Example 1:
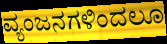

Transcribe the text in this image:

ವ್ಯಂಜನಗಳಿಂದಲೂ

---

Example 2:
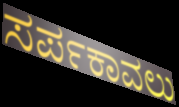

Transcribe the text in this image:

ಸರ್ಪಕಾವಲು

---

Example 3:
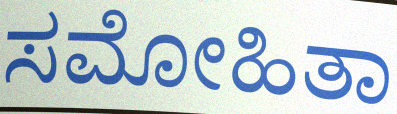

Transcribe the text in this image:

ಸಮೋಹಿತಾ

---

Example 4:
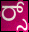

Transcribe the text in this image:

ರ್‍ಸ್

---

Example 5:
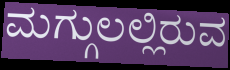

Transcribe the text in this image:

ಮಗ್ಗುಲಲ್ಲಿರುವ